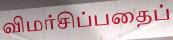
விமர்சிப்பதைப்